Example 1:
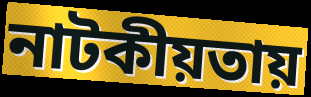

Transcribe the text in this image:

নাটকীয়তায়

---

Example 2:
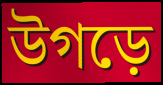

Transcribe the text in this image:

উগড়ে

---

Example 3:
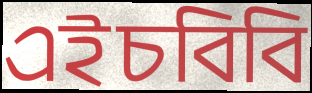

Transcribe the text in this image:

এইচবিবি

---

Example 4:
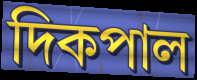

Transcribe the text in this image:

দিকপাল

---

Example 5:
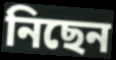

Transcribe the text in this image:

নিছেন